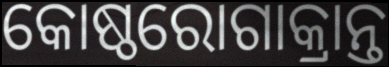
କୋଷ୍ଠରୋଗାକ୍ରାନ୍ତ